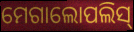
ମେଗାଲୋପଲିସ୍